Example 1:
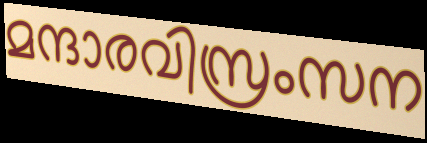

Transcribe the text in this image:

മന്ദാരവിസ്രംസന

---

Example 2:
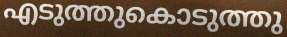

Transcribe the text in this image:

എടുത്തുകൊടുത്തു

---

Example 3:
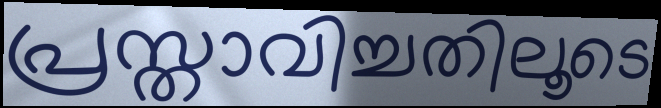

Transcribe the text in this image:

പ്രസ്താവിച്ചതിലൂടെ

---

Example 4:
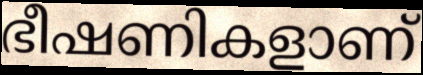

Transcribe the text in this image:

ഭീഷണികളാണ്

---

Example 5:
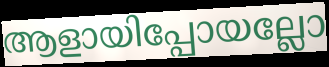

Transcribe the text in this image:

ആളായിപ്പോയല്ലോ